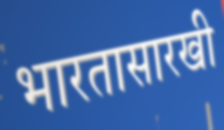
भारतासारखी